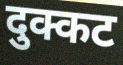
दुक्कट